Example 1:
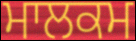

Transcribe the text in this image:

ਮਾਲਕਮ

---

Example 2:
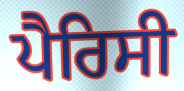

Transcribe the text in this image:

ਪੈਰਿਸੀ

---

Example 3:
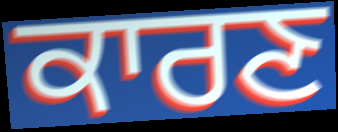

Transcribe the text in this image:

ਕਾਰਣ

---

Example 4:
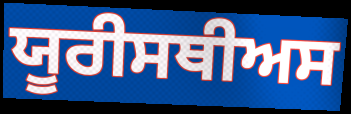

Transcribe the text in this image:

ਯੂਰੀਸਥੀਅਸ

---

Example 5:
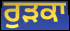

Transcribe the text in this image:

ਰੁੜਕਾ